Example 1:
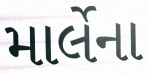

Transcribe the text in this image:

માર્લેના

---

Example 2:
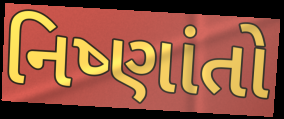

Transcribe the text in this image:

નિષ્ણાંતો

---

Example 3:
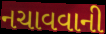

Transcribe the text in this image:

નચાવવાની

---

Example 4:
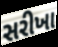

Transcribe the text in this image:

સરીખા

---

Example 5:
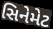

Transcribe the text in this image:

સિનેમેટ